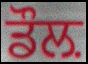
ਡੌਲ਼